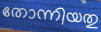
തോന്നിയതു